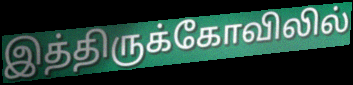
இத்திருக்கோவிலில்